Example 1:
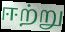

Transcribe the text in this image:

ஈற்று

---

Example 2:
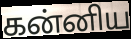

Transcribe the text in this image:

கன்னிய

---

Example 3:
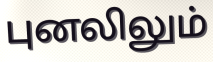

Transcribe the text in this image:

புனலிலும்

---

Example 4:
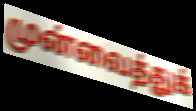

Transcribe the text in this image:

முன்வைத்துக்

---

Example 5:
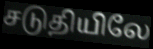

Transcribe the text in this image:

சடுதியிலே